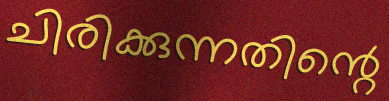
ചിരിക്കുന്നതിന്റെ